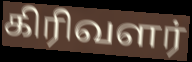
கிரிவளர்